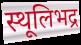
स्थूलिभद्र